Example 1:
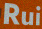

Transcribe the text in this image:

Rui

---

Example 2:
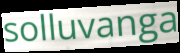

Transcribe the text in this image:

solluvanga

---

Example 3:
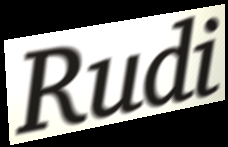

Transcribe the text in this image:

Rudi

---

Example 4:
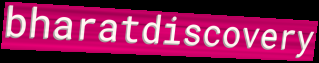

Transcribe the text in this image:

bharatdiscovery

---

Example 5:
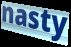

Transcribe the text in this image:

nasty